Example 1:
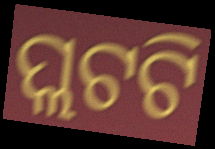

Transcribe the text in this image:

ପ୍ଲଟଟି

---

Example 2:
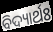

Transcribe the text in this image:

ବିଦ୍ୟାର୍ଥଃ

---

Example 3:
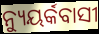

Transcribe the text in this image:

ନ୍ୟୁୟର୍କବାସୀ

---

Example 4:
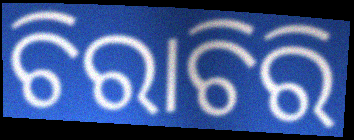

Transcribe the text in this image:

ଚିରାଚିରି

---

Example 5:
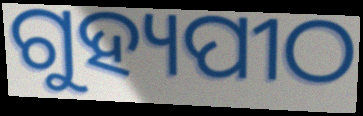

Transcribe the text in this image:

ଗୁହ୍ୟପୀଠ